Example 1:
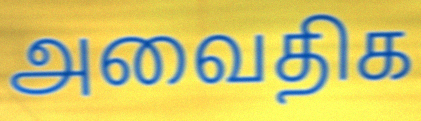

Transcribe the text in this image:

அவைதிக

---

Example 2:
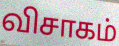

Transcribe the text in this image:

விசாகம்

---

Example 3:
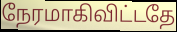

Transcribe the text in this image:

நேரமாகிவிட்டதே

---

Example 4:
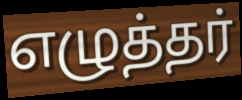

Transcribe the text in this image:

எழுத்தர்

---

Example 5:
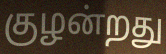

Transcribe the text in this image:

குழன்றது